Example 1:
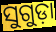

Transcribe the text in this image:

ସୁଗୁଡ଼ା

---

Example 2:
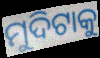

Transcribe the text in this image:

ମୁଦିଟାକୁ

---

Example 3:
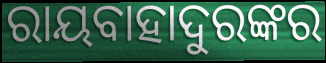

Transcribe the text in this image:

ରାୟବାହାଦୁରଙ୍କର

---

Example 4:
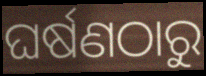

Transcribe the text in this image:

ଘର୍ଷଣଠାରୁ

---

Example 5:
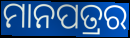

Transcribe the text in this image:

ମାନପତ୍ରର